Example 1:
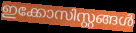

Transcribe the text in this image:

ഇക്കോസിസ്റ്റങ്ങൾ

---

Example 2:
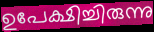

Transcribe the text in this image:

ഉപേക്ഷിച്ചിരുന്നു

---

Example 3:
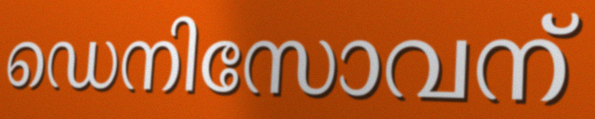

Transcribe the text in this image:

ഡെനിസോവന്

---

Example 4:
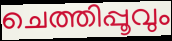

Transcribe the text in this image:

ചെത്തിപ്പൂവും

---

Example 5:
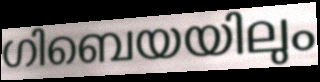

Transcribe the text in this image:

ഗിബെയയിലും